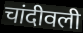
चांदीवली